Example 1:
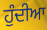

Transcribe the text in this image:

ਹੁੰਦੀਆ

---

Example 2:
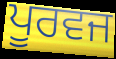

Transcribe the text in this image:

ਪੂਰਵਜ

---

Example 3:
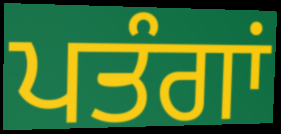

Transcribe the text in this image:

ਪਤੰਗਾਂ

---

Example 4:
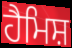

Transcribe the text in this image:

ਹੈਮਿਸ਼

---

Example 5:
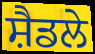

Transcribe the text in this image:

ਸ਼ੈਡਲੇ